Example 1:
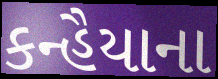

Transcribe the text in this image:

કન્હૈયાના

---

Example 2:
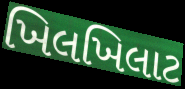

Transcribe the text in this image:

ખિલખિલાટ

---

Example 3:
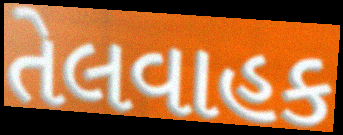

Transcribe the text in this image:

તેલવાહક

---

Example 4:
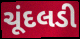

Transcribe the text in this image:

ચૂંદલડી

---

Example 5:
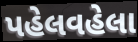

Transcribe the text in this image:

પહેલવહેલા